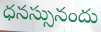
ధనస్సునందు